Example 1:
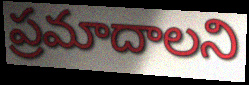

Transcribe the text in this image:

ప్రమాదాలని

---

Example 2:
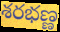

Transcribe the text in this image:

శరభణ్ణ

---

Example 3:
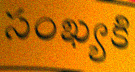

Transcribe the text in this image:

సంఖ్యకి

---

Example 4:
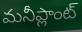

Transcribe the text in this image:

మనీప్లాంట్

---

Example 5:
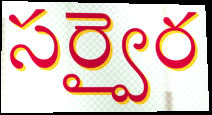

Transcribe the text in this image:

సర్వైర